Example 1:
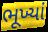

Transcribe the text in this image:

ભૂખ્યાં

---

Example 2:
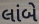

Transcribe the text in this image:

લાંબે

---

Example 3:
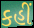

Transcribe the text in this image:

કહીં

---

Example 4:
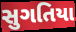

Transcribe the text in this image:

સુગતિયા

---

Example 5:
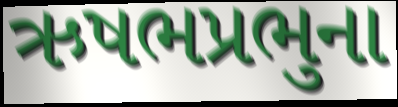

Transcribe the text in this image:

ઋષભપ્રભુના